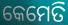
କେମେତି